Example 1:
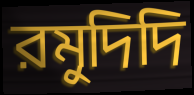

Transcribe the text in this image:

রমুদিদি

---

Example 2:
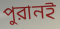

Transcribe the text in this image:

পুরানই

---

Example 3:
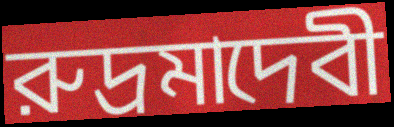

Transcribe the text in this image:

রুদ্রমাদেবী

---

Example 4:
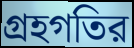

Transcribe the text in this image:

গ্রহগতির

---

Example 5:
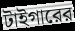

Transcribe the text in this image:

টাইগারের